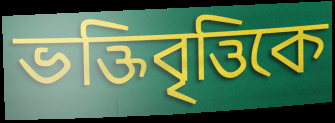
ভক্তিবৃত্তিকে